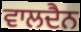
ਵਾਲਦੈਨ